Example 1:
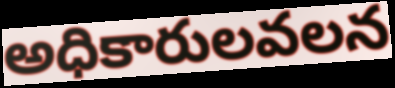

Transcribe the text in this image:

అధికారులవలన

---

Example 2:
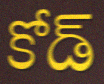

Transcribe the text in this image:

కోడ్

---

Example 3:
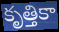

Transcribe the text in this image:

కృత్తికా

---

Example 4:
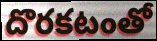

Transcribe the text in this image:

దొరకటంతో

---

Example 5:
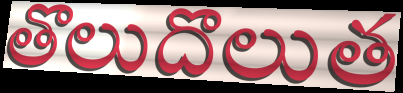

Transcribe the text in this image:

తొలుదొలుత